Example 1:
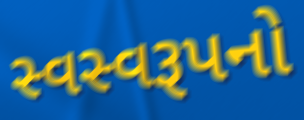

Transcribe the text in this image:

સ્વસ્વરૂપનો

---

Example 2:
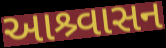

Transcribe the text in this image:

આશ્ર્વાસન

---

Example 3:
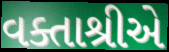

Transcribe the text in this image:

વક્તાશ્રીએ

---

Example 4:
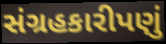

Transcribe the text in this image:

સંગ્રહકારીપણું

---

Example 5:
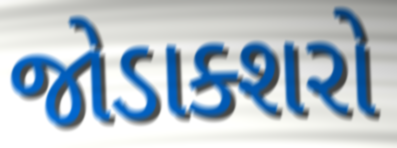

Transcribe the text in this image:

જોડાક્શરો